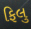
ફિલુ